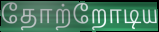
தோற்றோடிய